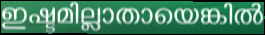
ഇഷ്ടമില്ലാതായെങ്കിൽ